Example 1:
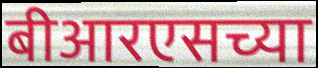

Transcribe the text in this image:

बीआरएसच्या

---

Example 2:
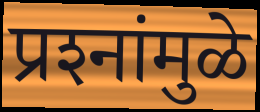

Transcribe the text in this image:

प्रश्‍नांमुळे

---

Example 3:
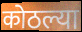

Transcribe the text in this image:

कोठल्या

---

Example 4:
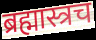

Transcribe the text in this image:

ब्रह्मास्त्रच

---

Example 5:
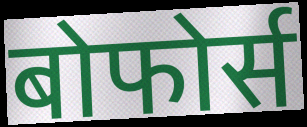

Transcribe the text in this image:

बोफोर्स